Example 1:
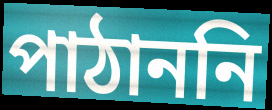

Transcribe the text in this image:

পাঠাননি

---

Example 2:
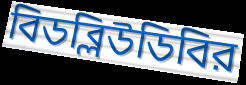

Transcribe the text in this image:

বিডব্লিউডিবির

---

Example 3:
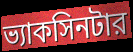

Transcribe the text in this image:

ভ্যাকসিনটার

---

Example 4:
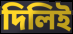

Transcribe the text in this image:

দিলিই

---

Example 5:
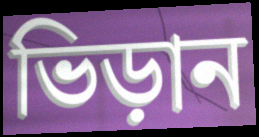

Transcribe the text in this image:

ভিড়ান